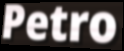
Petro